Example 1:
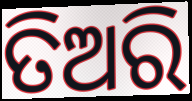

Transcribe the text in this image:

ତିଅରି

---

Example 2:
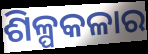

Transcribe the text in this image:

ଶିଳ୍ପକଳାର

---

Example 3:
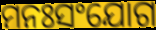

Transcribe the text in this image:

ମନଃସଂଯୋଗ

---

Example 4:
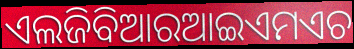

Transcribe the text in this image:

ଏଲଜିବିଆରଆଇଏମଏଚ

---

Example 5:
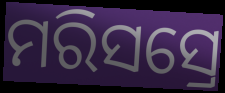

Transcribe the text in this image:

ମରିସସ୍ରେ